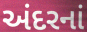
અંદરનાં